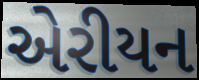
એરીયન